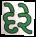
દેરે